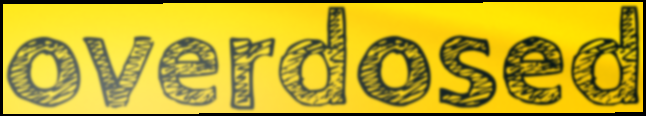
overdosed